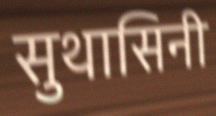
सुथासिनी